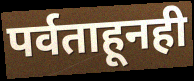
पर्वताहूनही